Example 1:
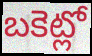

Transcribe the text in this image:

బకెట్లో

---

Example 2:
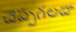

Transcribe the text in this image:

చెప్పగలదా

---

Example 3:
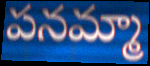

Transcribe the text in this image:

పనమ్మా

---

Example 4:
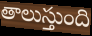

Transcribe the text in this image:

తాలుస్తుంది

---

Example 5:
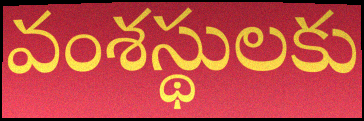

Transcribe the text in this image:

వంశస్థులకు